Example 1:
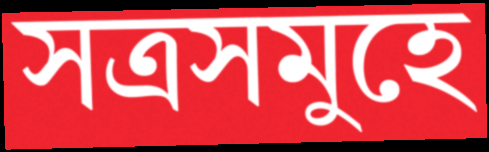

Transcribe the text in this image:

সত্ৰসমুহে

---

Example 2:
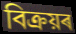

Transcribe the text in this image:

বিক্ৰয়ৰ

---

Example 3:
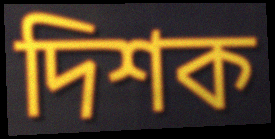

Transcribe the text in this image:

দিশক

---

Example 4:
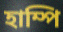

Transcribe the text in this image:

হাম্পি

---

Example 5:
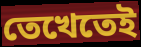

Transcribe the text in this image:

তেখেতেই